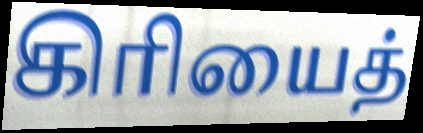
கிரியைத்